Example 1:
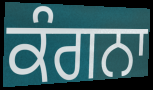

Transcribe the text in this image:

ਕੰਗਨਾ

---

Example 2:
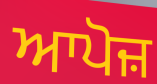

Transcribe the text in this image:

ਆਪੋਜ਼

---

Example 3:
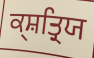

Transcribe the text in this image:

ਕ੍ਸ਼ਤ੍ਰਿਯ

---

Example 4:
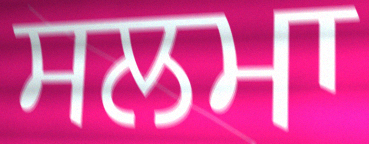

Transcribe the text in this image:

ਸਲਮਾ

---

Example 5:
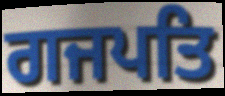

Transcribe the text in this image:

ਗਜਪਤਿ